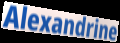
Alexandrine